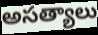
అసత్యాలు